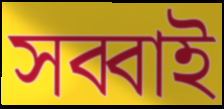
সব্বাই